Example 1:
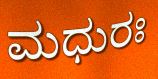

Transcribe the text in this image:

ಮಧುರಃ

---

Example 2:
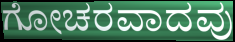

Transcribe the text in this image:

ಗೋಚರವಾದವು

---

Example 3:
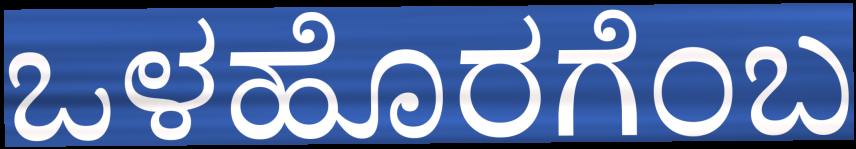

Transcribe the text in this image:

ಒಳಹೊರಗೆಂಬ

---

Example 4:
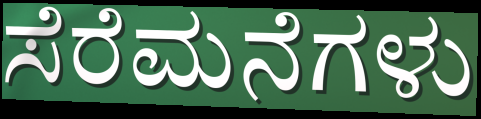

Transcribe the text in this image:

ಸೆರೆಮನೆಗಳು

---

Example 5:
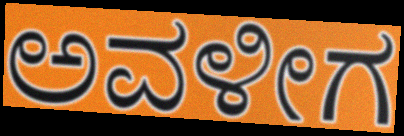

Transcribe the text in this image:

ಅವಳೀಗ